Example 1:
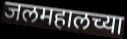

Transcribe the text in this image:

जलमहालच्या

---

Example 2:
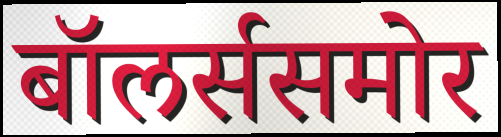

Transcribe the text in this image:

बॉलर्ससमोर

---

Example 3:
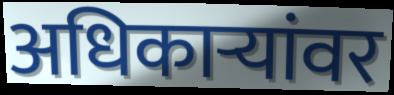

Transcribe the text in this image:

अधिकाऱ्यांवर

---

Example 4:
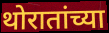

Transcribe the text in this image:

थोरातांच्या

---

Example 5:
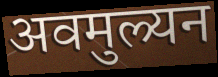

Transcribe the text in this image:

अवमुल्यन